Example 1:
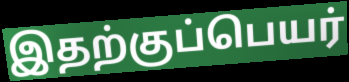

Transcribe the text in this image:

இதற்குப்பெயர்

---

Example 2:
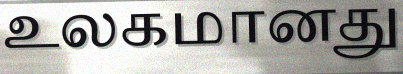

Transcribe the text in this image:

உலகமானது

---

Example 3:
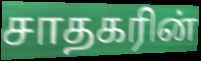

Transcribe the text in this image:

சாதகரின்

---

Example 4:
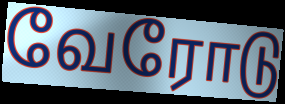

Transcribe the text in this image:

வேரோடு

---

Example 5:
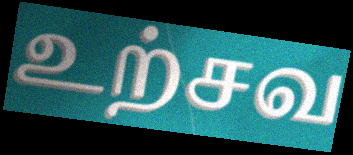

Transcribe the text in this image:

உற்சவ